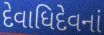
દેવાધિદેવનાં